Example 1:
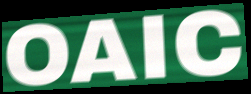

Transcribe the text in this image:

OAIC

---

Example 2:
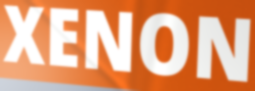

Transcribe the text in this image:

XENON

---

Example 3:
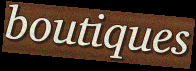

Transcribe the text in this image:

boutiques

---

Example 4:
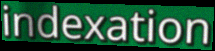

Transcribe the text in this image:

indexation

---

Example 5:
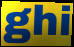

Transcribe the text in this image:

ghi